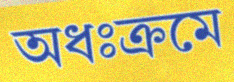
অধঃক্রমে